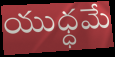
యుధ్ధమే